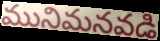
మునిమనవడి